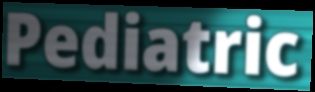
Pediatric